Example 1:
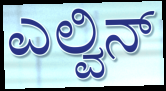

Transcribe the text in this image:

ಎಲ್ವಿನ್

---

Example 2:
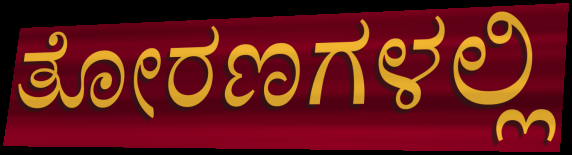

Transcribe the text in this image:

ತೋರಣಗಳಲ್ಲಿ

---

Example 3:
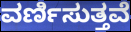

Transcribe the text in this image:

ವರ್ಣಿಸುತ್ತವೆ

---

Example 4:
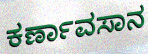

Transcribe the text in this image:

ಕರ್ಣಾವಸಾನ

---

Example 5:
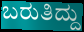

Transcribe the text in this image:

ಬರುತಿದ್ದು